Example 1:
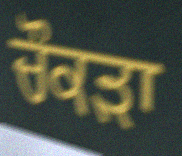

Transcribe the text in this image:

ਚੌਕੜਾ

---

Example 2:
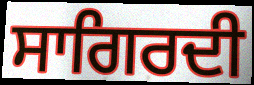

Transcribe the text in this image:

ਸਾਗਿਰਦੀ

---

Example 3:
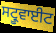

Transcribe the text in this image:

ਸਟ੍ਰੂਵਾਈਟ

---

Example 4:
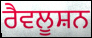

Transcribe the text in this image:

ਰੈਵਲੂਸ਼ਨ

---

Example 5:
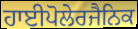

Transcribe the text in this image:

ਹਾਈਪੋਲੇਰਜੈਨਿਕ